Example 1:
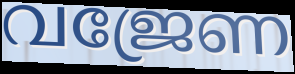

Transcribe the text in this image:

വജ്രേണ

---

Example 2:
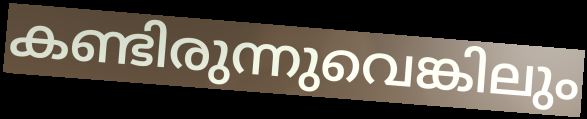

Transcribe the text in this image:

കണ്ടിരുന്നുവെങ്കിലും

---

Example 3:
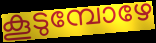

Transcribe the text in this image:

കൂടുമ്പോഴേ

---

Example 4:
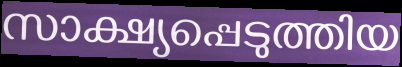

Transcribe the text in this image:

സാക്ഷ്യപ്പെടുത്തിയ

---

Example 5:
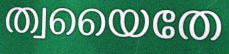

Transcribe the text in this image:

ത്വയൈതേ